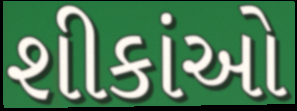
શીકાંઓ